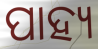
ପାହ୍ୟ